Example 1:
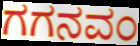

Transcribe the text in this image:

ಗಗನವಂ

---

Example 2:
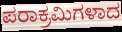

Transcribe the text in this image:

ಪರಾಕ್ರಮಿಗಳಾದ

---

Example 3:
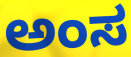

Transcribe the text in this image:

ಅಂಸ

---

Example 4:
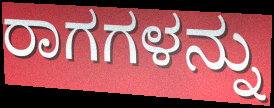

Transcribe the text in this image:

ರಾಗಗಳನ್ನು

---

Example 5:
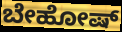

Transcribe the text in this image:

ಬೇಹೋಷ್